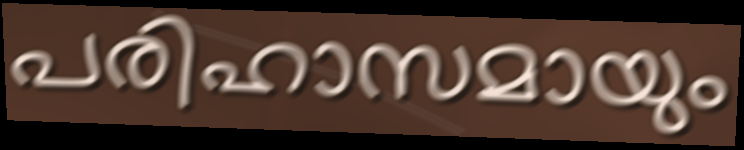
പരിഹാസമായും